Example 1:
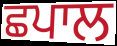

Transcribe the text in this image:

ਛਪਾਲ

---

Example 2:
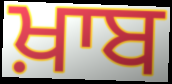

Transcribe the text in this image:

ਖ਼ਾਬ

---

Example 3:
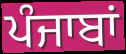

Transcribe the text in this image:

ਪੰਜਾਬਾਂ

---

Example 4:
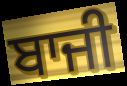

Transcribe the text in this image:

ਬਾਜੀ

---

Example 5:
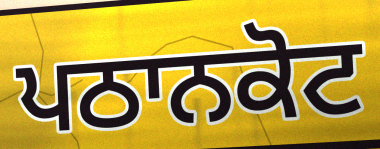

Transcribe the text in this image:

ਪਠਾਨਕੋਟ